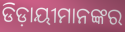
ଡିଡ଼ାୟୀମାନଙ୍କର